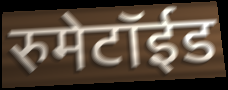
रुमेटॉईड